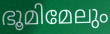
ഭൂമിമേലും